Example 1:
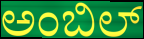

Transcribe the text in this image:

ಅಂಬಿಲ್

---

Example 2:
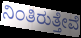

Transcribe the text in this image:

ನಿಂತಿರುತ್ತೇವೆ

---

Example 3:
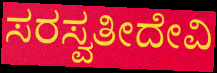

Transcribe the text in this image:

ಸರಸ್ವತೀದೇವಿ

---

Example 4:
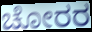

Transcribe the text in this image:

ಚೋರರ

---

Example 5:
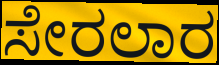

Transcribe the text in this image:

ಸೇರಲಾರ